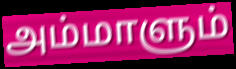
அம்மாளும்